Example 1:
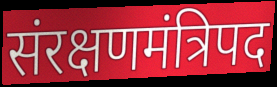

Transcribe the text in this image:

संरक्षणमंत्रिपद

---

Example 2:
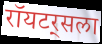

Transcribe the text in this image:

रॉयटर्सला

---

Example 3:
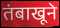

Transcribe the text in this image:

तंबाखूने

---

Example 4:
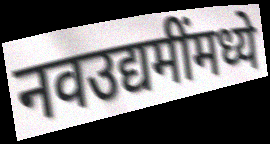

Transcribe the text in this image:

नवउद्यमींमध्ये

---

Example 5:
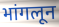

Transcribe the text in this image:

भांगलून